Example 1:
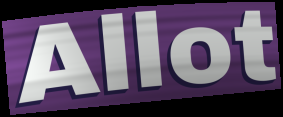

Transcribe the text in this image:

Allot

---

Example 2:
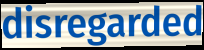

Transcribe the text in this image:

disregarded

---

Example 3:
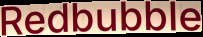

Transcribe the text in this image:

Redbubble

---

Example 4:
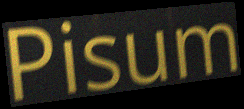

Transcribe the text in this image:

Pisum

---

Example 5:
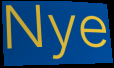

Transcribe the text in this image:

Nye